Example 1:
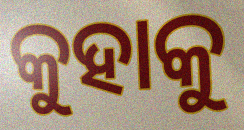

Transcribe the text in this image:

କୁହାକୁ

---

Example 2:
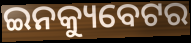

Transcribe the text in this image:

ଇନକ୍ୟୁବେଟର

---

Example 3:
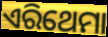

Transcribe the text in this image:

ଏରିଥେମା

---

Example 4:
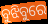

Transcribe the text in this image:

ବୁଝିବୁରେ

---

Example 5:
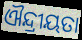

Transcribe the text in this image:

ଐନ୍ଦ୍ରୀୟତା